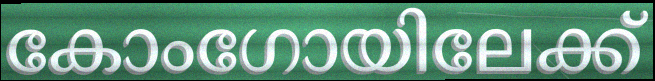
കോംഗോയിലേക്ക്